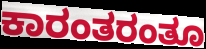
ಕಾರಂತರಂತೂ